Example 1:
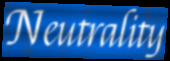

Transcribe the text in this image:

Neutrality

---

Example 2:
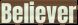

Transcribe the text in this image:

Believer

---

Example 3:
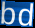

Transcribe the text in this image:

bd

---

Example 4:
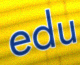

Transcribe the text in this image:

edu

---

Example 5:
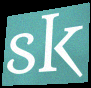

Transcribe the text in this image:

sk